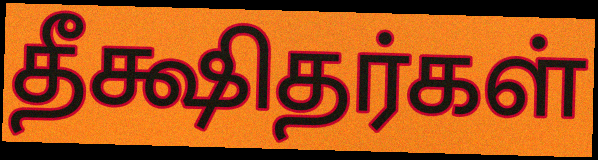
தீக்ஷிதர்கள்